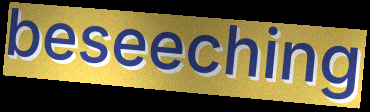
beseeching